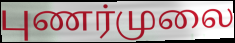
புணர்முலை